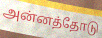
அன்னத்தோடு